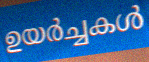
ഉയർച്ചകൾ